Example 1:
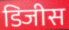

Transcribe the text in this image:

डिजीस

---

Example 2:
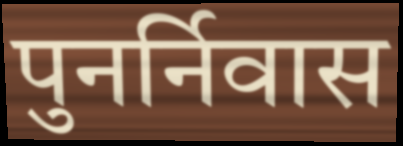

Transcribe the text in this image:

पुनर्निवास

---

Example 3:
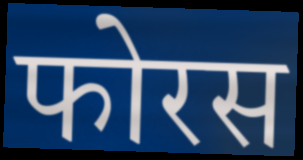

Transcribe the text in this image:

फोरस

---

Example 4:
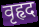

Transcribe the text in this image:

वृहृद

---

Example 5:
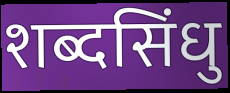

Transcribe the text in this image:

शब्दसिंधु